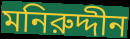
মনিরুদ্দীন